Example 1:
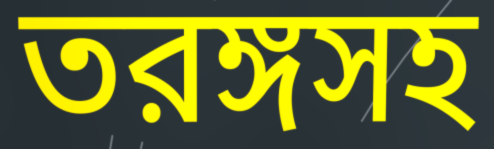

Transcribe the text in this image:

তরঙ্গসহ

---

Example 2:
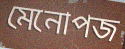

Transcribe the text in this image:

মেনোপজ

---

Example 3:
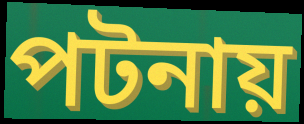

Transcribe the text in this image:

পটনায়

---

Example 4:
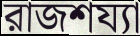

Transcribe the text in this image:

রাজশয্যা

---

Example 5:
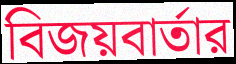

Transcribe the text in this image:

বিজয়বার্তার